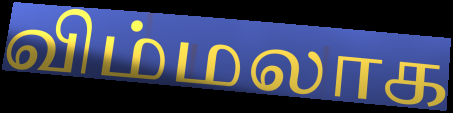
விம்மலாக